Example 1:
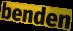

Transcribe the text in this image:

benden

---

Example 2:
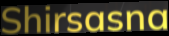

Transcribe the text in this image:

Shirsasna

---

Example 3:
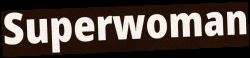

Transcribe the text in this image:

Superwoman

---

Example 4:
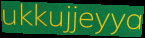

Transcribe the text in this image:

ukkujjeyya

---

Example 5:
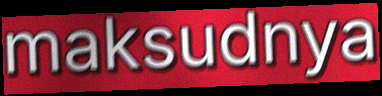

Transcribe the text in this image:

maksudnya